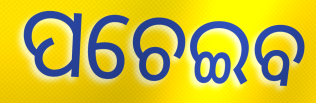
ପଚେଇବ